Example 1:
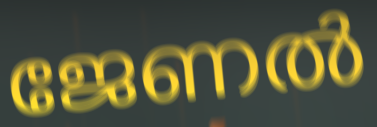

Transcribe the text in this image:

ജേണൽ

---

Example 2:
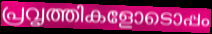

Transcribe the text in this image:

പ്രവൃത്തികളോടൊപ്പം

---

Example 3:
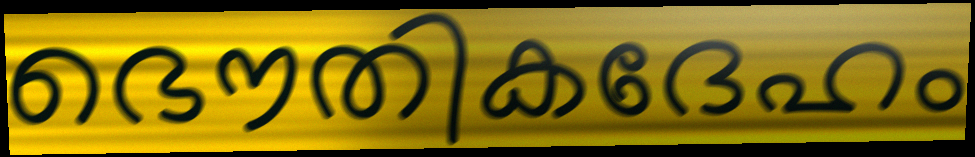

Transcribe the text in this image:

ഭൌതികദേഹം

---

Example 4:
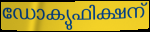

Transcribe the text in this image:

ഡോക്യുഫിക്ഷന്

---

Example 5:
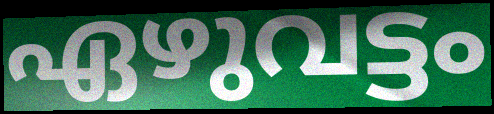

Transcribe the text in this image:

ഏഴുവട്ടം